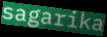
sagarika